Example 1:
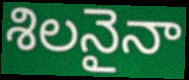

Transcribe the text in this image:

శిలనైనా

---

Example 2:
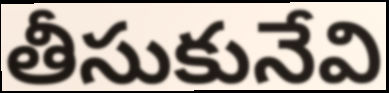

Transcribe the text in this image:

తీసుకునేవి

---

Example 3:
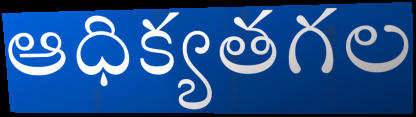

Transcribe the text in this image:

ఆధిక్యతగల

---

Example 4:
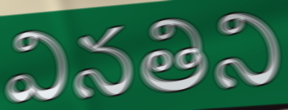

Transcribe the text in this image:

వినతిని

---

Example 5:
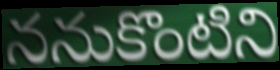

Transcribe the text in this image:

ననుకొంటిని